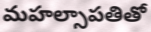
మహల్సాపతితో